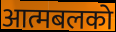
आत्मबलको